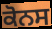
ਕੋਨਸ